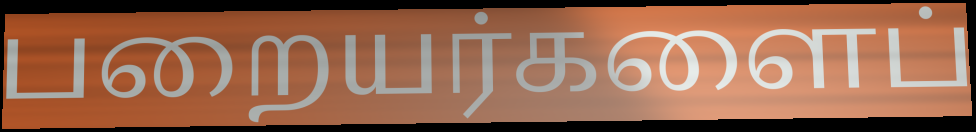
பறையர்களைப்